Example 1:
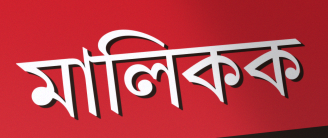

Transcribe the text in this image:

মালিকক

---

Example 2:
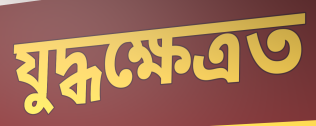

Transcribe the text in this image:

যুদ্ধক্ষেত্ৰত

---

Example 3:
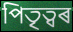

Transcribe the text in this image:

পিতৃত্বৰ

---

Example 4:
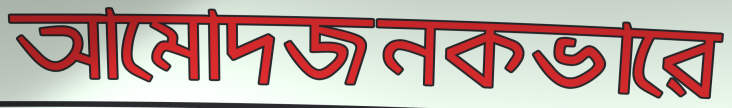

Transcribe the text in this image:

আমোদজনকভাৱে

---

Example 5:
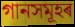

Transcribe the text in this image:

গানসমূহৰ